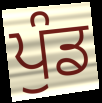
ਪੁੰਡ